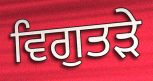
ਵਿਗੁਤੜੇ